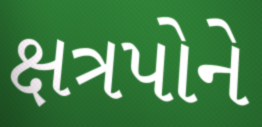
ક્ષત્રપોને